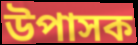
উপাসক